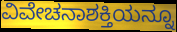
ವಿವೇಚನಾಶಕ್ತಿಯನ್ನೂ